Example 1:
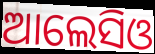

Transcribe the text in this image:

ଆଲେସିଓ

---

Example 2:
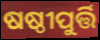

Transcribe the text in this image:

ଷଷ୍ଠୀପୁର୍ତ୍ତି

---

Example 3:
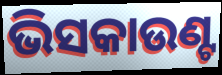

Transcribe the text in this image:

ଭିସକାଉଣ୍ଟ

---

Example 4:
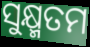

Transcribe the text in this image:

ସୁକ୍ଷ୍ମତମ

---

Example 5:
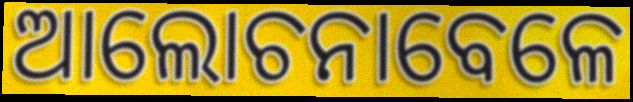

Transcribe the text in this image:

ଆଲୋଚନାବେଳେ